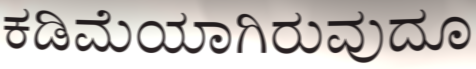
ಕಡಿಮೆಯಾಗಿರುವುದೂ